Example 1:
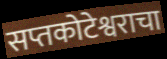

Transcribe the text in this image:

सप्तकोटेश्वराचा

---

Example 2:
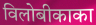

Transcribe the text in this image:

विलोबीकाका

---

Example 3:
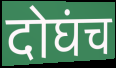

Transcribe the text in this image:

दोघंच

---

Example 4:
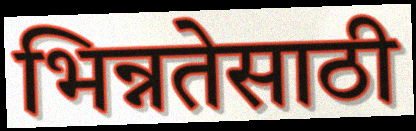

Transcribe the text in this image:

भिन्नतेसाठी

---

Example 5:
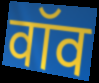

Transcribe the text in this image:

वॉव